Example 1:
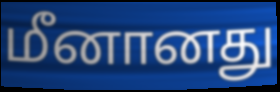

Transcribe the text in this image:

மீனானது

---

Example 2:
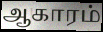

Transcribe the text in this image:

ஆகாரம்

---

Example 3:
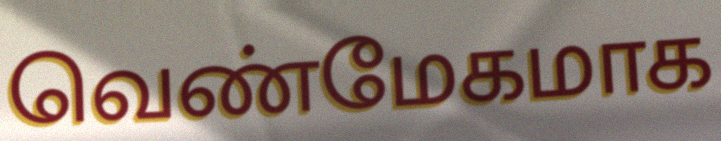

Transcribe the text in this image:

வெண்மேகமாக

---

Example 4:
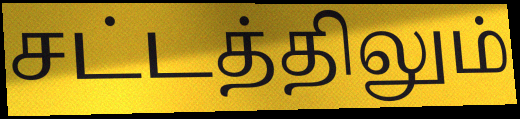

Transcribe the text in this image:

சட்டத்திலும்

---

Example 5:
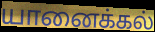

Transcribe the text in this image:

யானைக்கல்